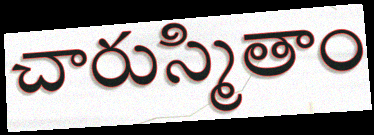
చారుస్మితాం